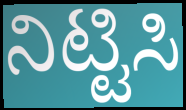
ನಿಟ್ಟಿಸಿ